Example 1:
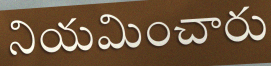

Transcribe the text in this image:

నియమించారు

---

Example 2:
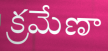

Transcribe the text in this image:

క్రమేణా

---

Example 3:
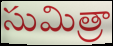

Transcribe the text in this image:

సుమిత్రా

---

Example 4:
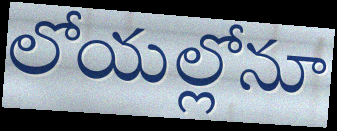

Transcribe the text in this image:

లోయల్లోనూ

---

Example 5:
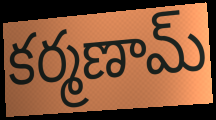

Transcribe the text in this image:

కర్మణామ్